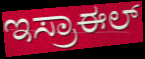
ಇಸ್ರಾಈಲ್